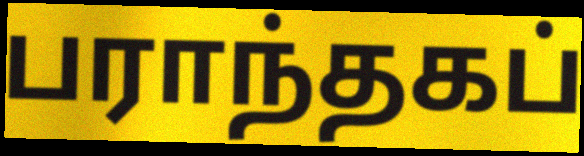
பராந்தகப்